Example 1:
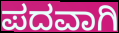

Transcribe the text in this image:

ಪದವಾಗಿ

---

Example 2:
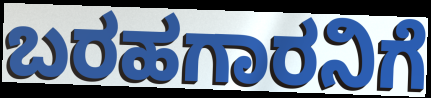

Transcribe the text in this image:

ಬರಹಗಾರನಿಗೆ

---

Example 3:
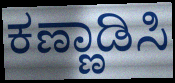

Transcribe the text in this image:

ಕಣ್ಣಾಡಿಸಿ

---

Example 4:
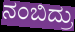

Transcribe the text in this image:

ನಂಬಿದ್ರು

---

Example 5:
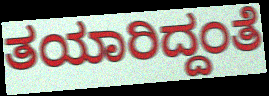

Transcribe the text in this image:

ತಯಾರಿದ್ದಂತೆ